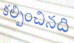
కల్పించినది